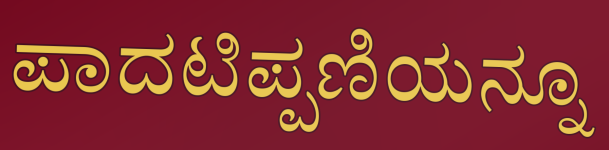
ಪಾದಟಿಪ್ಪಣಿಯನ್ನೂ